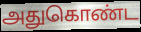
அதுகொண்ட